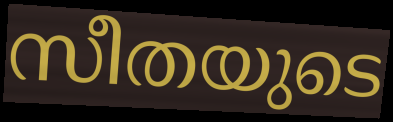
സീതയുടെ